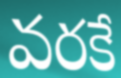
వరకే